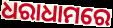
ଧରାଧାମରେ